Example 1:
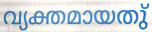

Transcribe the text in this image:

വ്യക്തമായതു്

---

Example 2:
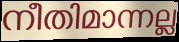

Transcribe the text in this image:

നീതിമാന്നല്ല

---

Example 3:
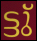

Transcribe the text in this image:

ട്ടു്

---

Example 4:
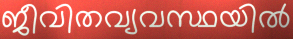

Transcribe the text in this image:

ജീവിതവ്യവസ്ഥയിൽ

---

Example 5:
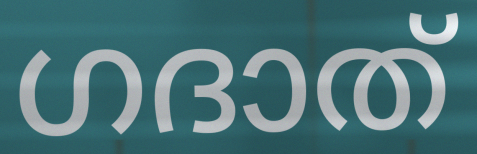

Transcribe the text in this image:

ഗദാത്